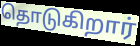
தொடுகிறார்